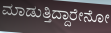
ಮಾಡುತ್ತಿದ್ದಾರೇನೋ